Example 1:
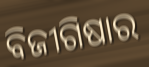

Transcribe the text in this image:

ବିଜୀଗିଷାର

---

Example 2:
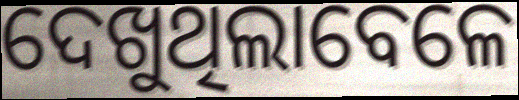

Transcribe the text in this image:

ଦେଖୁଥିଲାବେଳେ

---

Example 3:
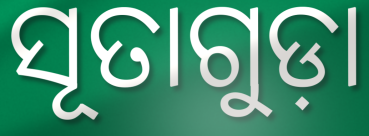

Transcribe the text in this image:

ସୂତାଗୁଡ଼ା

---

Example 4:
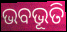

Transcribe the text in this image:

ଭବଭୂତି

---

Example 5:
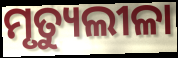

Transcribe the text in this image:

ମୃତ୍ୟୁଲୀଳା